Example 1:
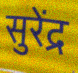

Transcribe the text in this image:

सुरेंद्र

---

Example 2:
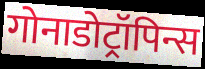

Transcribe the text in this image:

गोनाडोट्रॉपिन्स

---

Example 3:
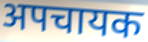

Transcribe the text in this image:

अपचायक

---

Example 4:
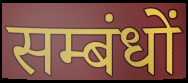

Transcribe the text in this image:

सम्बंधों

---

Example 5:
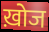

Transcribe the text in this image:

ख़ोज